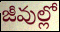
జీవుల్లో